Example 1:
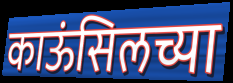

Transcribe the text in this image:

काऊंसिलच्या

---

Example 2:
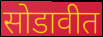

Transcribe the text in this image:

सोडावीत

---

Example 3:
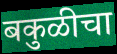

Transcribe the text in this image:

बकुळीचा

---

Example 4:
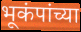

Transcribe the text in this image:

भूकंपांच्या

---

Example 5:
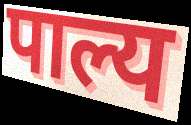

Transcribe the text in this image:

पाल्य